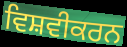
ਵਿਸ਼ਵੀਕਰਨ